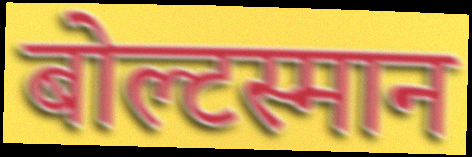
बोल्टस्मान